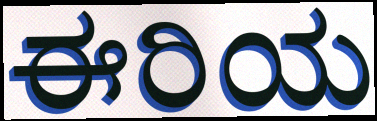
ಈರಿಯ